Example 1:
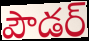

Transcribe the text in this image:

పౌడర్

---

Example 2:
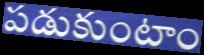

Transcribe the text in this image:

పడుకుంటాం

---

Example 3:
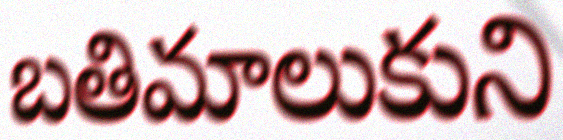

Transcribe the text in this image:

బతిమాలుకుని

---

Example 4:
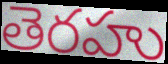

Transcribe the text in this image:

తెరహు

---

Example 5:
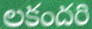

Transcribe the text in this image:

లకందరి